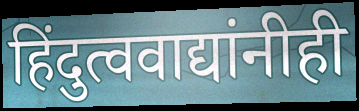
हिंदुत्ववाद्यांनीही